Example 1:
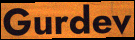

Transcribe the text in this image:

Gurdev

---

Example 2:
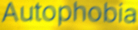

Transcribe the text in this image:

Autophobia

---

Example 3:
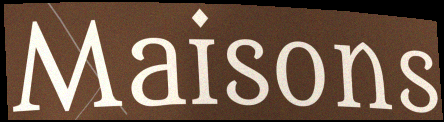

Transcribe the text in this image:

Maisons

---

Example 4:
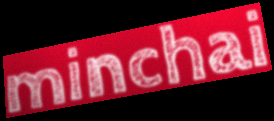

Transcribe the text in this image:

minchai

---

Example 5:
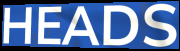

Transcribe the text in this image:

HEADS